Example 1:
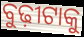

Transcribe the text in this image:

ବୁଢ଼ୀଟାକୁ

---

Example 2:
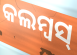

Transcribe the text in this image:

କଲମ୍ବସ୍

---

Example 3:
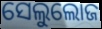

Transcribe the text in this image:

ସେଲୁଲୋଜ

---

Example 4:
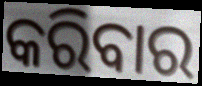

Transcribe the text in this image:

କରିବାର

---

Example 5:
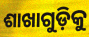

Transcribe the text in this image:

ଶାଖାଗୁଡ଼ିକୁ